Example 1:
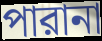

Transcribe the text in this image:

পারানা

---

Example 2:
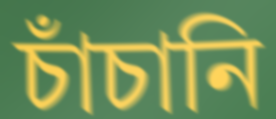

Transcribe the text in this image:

চাঁচানি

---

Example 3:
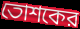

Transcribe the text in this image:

তোশকের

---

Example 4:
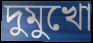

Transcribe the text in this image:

দুমুখো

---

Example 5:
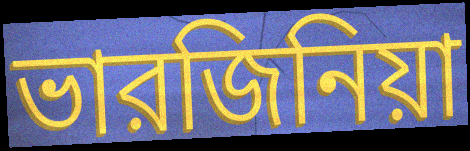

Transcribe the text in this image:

ভারজিনিয়া